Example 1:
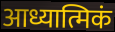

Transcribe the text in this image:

आध्यात्मिकं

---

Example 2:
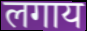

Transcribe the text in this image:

लगाय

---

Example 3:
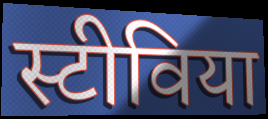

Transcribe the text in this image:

स्टीविया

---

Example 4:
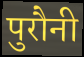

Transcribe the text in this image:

पुरौनी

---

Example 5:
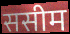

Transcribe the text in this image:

ससीम